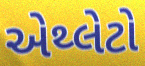
એથ્લેટો